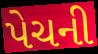
પેચની